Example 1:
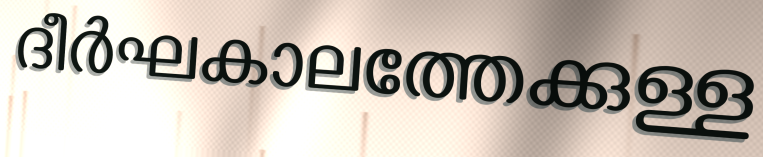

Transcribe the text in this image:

ദീർഘകാലത്തേക്കുള്ള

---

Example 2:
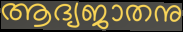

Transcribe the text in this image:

ആദ്യജാതനു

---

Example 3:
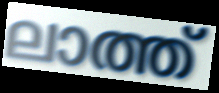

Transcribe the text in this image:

ലാത്ത്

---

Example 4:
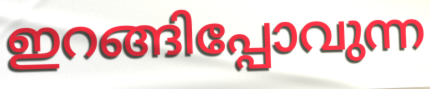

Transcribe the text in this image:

ഇറങ്ങിപ്പോവുന്ന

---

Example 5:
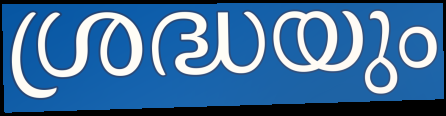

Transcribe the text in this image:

ശ്രദ്ധയും